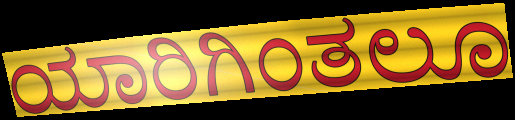
ಯಾರಿಗಿಂತಲೂ